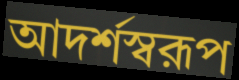
আদর্শস্বরূপ